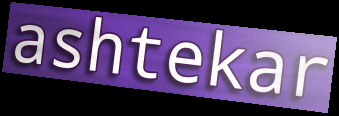
ashtekar